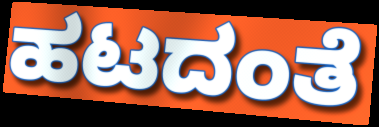
ಹಟದಂತೆ